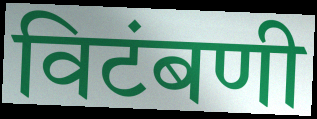
विटंबणी